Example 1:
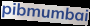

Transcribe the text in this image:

pibmumbai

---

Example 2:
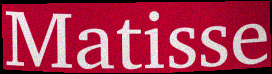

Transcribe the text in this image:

Matisse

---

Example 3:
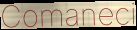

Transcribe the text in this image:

Comaneci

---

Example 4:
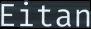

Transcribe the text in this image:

Eitan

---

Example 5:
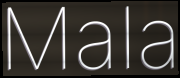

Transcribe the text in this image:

Mala